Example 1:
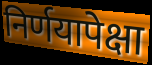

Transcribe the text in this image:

निर्णयापेक्षा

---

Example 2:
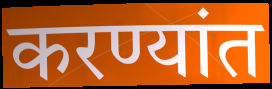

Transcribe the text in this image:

करण्यांत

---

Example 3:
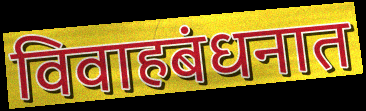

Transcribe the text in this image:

विवाहबंधनात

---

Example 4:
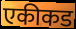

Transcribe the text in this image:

एकीकड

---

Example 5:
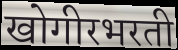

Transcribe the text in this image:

खोगीरभरती